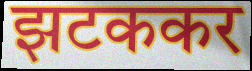
झटककर